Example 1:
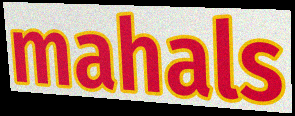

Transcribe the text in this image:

mahals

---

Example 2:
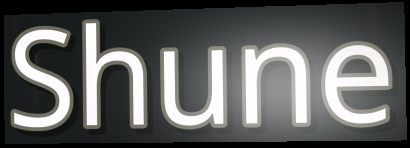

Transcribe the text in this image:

Shune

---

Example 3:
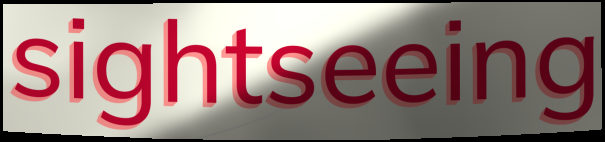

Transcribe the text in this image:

sightseeing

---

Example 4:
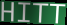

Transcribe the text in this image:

HITT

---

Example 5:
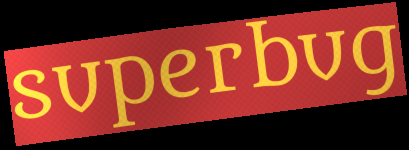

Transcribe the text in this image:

superbug